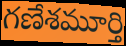
గణేశమూర్తి